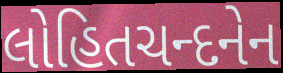
લોહિતચન્દનેન